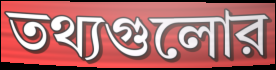
তথ্যগুলোর